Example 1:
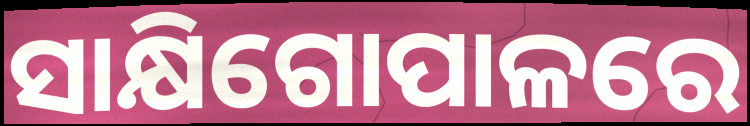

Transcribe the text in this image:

ସାକ୍ଷିଗୋପାଳରେ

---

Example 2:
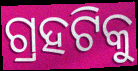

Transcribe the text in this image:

ଗ୍ରହଟିକୁ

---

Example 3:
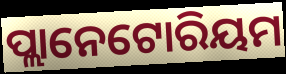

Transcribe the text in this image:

ପ୍ଲାନେଟୋରିୟମ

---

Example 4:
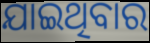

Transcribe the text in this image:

ଯାଇଥିବାର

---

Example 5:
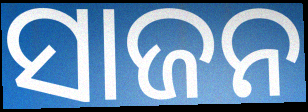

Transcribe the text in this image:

ସାଜନ